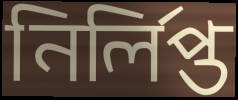
নিৰ্লিপ্ত